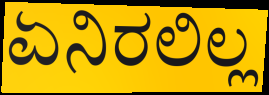
ಏನಿರಲಿಲ್ಲ